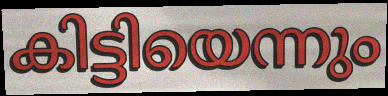
കിട്ടിയെന്നും